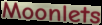
Moonlets